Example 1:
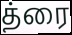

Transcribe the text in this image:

த்ரை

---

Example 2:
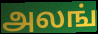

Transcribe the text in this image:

அலங்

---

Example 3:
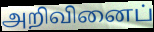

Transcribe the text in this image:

அறிவினைப்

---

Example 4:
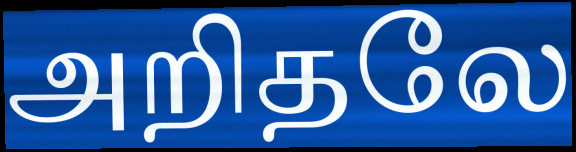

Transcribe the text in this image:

அறிதலே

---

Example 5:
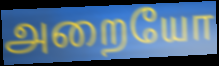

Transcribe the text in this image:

அறையோ